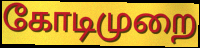
கோடிமுறை